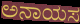
ಅನಾಯಸ